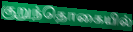
குறுந்தொகையில்